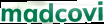
madcovi